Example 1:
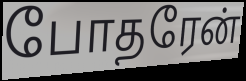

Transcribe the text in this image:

போதரேன்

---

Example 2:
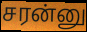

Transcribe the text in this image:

சரன்னு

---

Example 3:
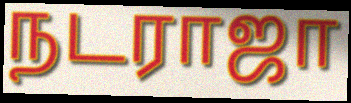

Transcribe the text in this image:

நடராஜா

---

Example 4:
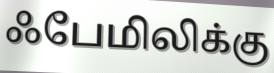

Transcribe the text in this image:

ஃபேமிலிக்கு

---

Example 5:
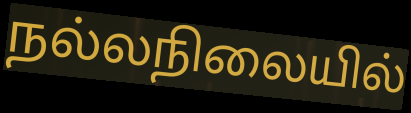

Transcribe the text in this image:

நல்லநிலையில்